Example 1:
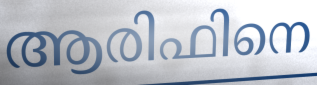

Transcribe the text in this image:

ആരിഫിനെ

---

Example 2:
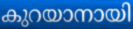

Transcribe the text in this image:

കുറയാനായി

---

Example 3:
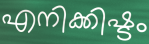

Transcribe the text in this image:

എനിക്കിഷ്ടം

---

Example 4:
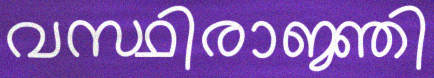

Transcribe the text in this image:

വസ്ഥിരാജ്ഞി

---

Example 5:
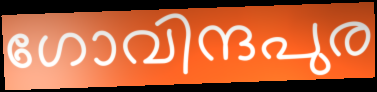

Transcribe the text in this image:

ഗോവിന്ദപുര